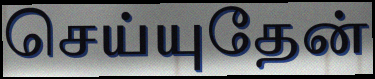
செய்யுதேன்